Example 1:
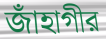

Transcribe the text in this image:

জাঁহাগীর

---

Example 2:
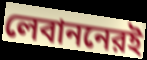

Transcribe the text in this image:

লেবাননেরই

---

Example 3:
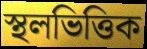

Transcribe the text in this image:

স্থলভিত্তিক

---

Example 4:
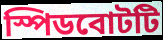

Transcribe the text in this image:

স্পিডবোটটি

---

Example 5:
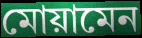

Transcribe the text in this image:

মোয়ামেন